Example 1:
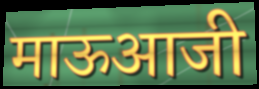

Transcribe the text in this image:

माऊआजी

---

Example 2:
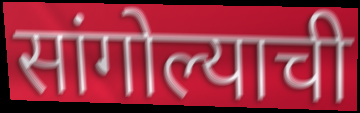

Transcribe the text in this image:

सांगोल्याची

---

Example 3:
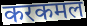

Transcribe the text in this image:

करकमल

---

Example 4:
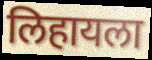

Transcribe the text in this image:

लिहायला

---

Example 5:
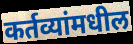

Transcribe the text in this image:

कर्तव्यांमधील